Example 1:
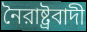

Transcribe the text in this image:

নৈরাষ্ট্রবাদী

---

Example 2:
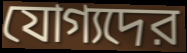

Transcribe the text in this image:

যোগ্যদের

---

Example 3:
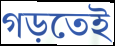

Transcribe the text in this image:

গড়তেই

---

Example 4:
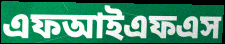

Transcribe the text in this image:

এফআইএফএস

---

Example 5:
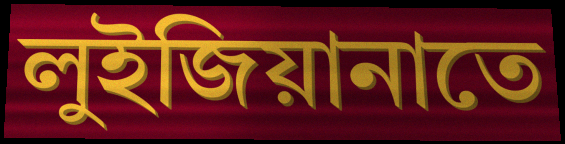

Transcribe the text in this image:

লুইজিয়ানাতে